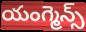
యంగ్మెన్స్